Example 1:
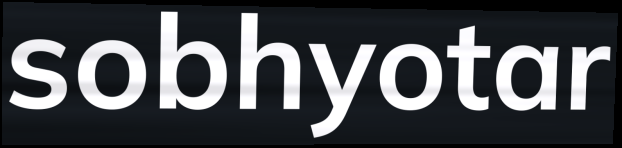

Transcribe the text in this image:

sobhyotar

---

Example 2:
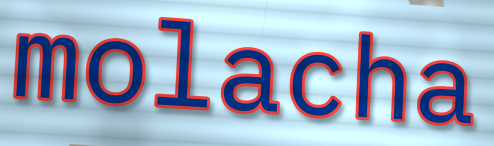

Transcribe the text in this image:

molacha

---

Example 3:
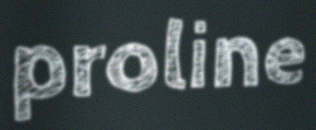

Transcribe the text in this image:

proline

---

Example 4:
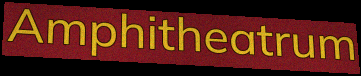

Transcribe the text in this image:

Amphitheatrum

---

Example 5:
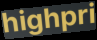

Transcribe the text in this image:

highpri